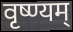
वृष्ण्यम्